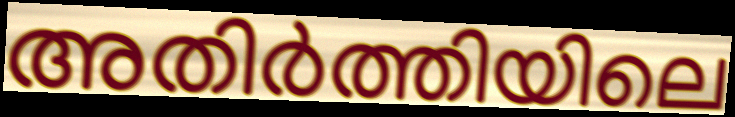
അതിർത്തിയിലെ